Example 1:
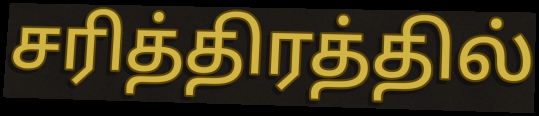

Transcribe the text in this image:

சரித்திரத்தில்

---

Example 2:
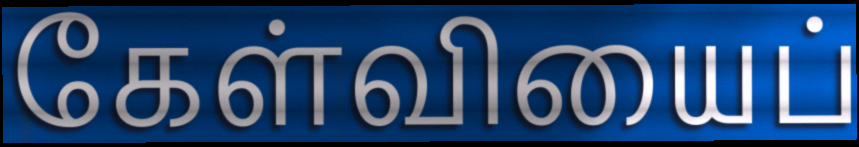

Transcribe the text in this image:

கேள்வியைப்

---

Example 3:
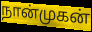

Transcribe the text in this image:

நான்முகன்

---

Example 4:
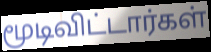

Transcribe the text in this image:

மூடிவிட்டார்கள்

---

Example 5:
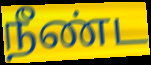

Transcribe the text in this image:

நீண்ட